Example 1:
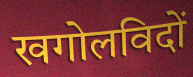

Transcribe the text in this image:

खगोलविदों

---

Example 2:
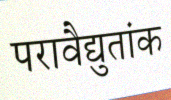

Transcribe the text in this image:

परावैद्युतांक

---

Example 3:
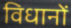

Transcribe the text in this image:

विधानों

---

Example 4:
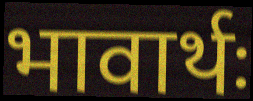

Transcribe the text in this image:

भावार्थः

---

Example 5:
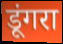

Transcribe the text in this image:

डूंगरा